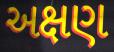
અક્ષણ